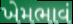
ખેમભાવં